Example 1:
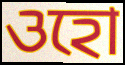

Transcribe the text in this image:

ওহো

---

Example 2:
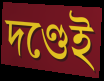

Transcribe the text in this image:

দণ্ডেই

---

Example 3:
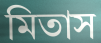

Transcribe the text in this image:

মিতাস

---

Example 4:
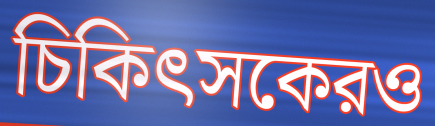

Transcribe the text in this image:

চিকিৎসকেরও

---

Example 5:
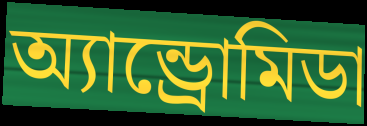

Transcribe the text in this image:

অ্যান্ড্রোমিডা